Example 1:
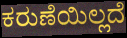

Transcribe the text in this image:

ಕರುಣೆಯಿಲ್ಲದೆ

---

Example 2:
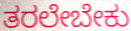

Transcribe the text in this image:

ತರಲೇಬೇಕು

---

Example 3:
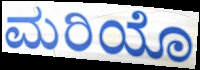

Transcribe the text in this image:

ಮರಿಯೊ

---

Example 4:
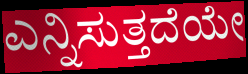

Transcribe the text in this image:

ಎನ್ನಿಸುತ್ತದೆಯೇ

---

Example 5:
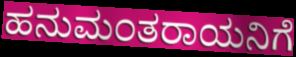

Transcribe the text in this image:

ಹನುಮಂತರಾಯನಿಗೆ